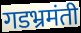
गडभ्रमंती